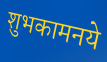
शुभकामनये